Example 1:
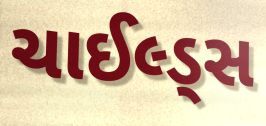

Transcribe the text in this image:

ચાઈલ્ડ્સ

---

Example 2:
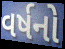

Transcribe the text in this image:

વર્ષનો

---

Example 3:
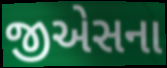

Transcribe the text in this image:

જીએસના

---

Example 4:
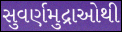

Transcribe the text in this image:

સુવર્ણમુદ્રાઓથી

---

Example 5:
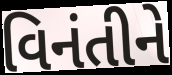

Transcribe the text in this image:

વિનંતીને